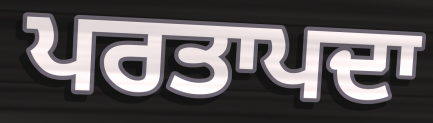
ਪਰਤਾਪਦਾ